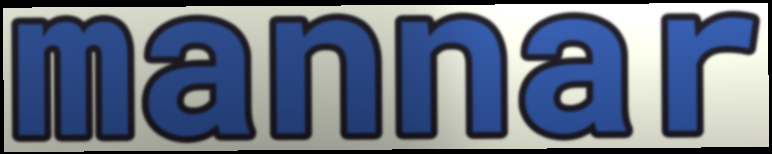
mannar